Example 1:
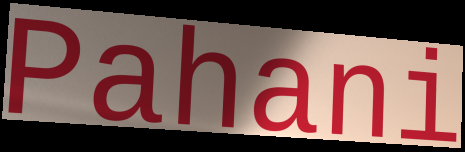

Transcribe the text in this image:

Pahani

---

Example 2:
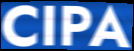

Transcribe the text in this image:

CIPA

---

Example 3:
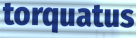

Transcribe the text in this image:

torquatus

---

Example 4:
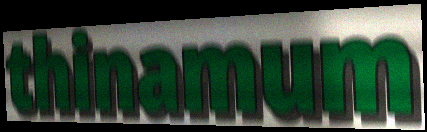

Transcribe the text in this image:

thinamum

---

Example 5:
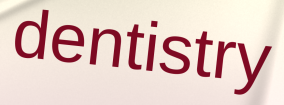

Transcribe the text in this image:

dentistry